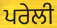
ਪਰੇਲੀ